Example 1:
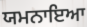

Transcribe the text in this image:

ਯਮਨਾਇਆ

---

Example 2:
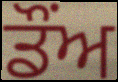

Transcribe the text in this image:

ਡੌਂਅ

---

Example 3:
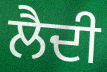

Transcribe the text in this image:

ਲੈਦੀ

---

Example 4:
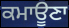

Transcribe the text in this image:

ਕਮਾਊਣਾ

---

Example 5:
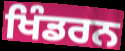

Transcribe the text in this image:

ਖਿੰਡਰਨ